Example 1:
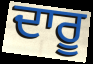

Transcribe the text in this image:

ਦਾਰੂ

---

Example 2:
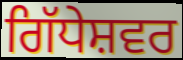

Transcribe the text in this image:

ਗਿੱਧੇਸ਼ਵਰ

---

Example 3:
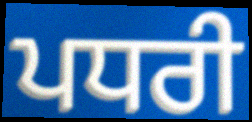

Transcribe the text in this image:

ਪਧਰੀ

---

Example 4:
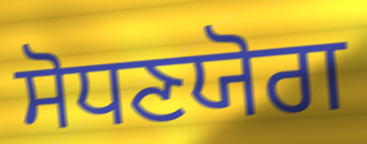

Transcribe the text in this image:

ਸੋਧਣਯੋਗ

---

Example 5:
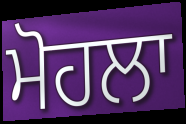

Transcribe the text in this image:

ਮੋਹਲਾ